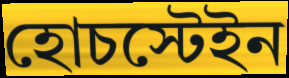
হোচস্টেইন